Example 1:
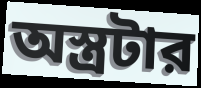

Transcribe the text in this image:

অস্ত্রটার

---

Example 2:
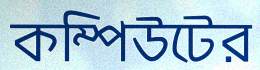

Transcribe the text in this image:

কম্পিউটের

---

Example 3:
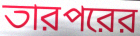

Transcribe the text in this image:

তারপরের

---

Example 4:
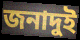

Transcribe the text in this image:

জনাদুই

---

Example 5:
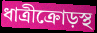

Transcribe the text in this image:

ধাত্রীক্রোড়স্থ